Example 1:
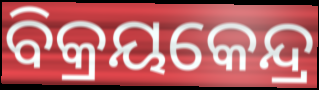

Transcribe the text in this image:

ବିକ୍ରୟକେନ୍ଦ୍ର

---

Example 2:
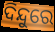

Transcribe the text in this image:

ଦିନ୍ଦୁରେ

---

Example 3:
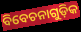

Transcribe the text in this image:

ବିବେଚନାଗୁଡ଼ିକ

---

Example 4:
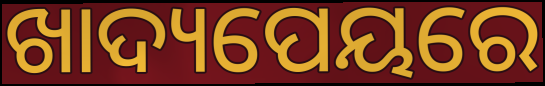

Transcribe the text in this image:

ଖାଦ୍ୟପେୟରେ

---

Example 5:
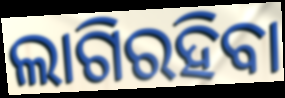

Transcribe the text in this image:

ଲାଗିରହିବା